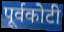
पूर्वकोटी